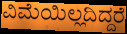
ವಿಮೆಯಿಲ್ಲದಿದ್ದರೆ